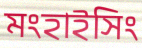
মংহাইসিং